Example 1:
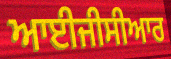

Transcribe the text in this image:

ਆਈਜੀਸੀਆਰ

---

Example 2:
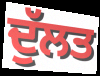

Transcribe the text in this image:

ਦੁੱਲਤ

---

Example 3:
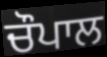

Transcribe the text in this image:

ਚੌਪਾਲ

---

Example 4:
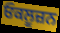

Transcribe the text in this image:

ਓਕਲੂਜ਼ਨ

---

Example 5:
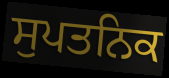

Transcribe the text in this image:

ਸੁਪਤਨਿਕ